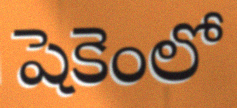
షెకెంలో